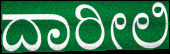
ದಾರೀಲಿ